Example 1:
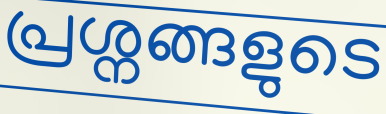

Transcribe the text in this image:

പ്രശ്നങ്ങളുടെ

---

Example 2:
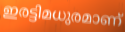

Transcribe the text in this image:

ഇരട്ടിമധുരമാണ്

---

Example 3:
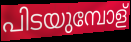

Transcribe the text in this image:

പിടയുമ്പോള്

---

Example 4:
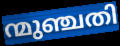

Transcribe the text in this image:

ന്മുഞ്ചതി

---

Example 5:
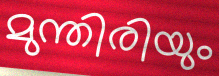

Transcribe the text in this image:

മുന്തിരിയും